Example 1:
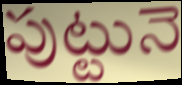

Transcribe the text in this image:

పుట్టునె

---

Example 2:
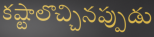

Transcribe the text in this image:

కష్టాలొచ్చినప్పుడు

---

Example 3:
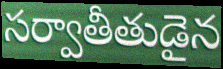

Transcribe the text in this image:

సర్వాతీతుడైన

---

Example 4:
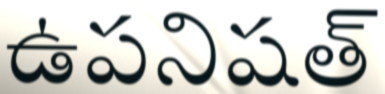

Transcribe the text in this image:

ఉపనిషత్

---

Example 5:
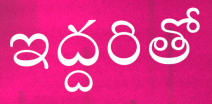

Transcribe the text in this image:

ఇద్దరితో